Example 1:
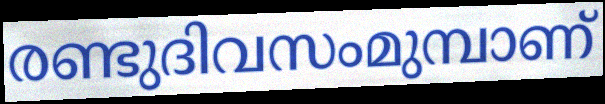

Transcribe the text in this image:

രണ്ടുദിവസംമുമ്പാണ്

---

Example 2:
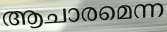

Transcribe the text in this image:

ആചാരമെന്ന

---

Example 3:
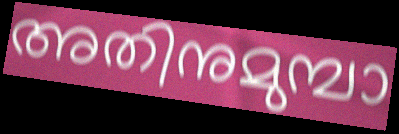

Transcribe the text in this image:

അതിനുമുമ്പാ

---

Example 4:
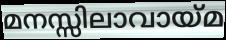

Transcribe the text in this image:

മനസ്സിലാവായ്മ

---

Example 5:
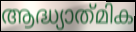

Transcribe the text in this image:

ആദ്ധ്യാത്‌മിക